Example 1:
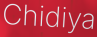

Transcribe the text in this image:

Chidiya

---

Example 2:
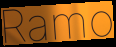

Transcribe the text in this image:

Ramo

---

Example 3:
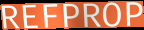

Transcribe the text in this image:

REFPROP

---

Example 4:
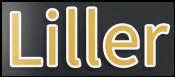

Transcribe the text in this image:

Liller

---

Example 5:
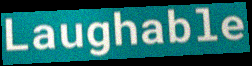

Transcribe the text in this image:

Laughable